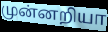
முன்னறியா